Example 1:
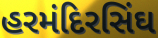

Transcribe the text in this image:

હરમંદિરસિંઘ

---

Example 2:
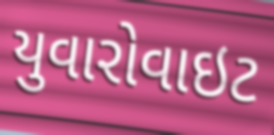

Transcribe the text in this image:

યુવારોવાઇટ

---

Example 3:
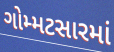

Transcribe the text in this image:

ગોમ્મટસારમાં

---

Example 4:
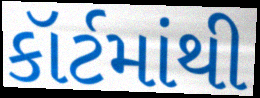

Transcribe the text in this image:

કૉર્ટમાંથી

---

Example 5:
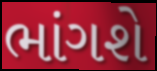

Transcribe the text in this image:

ભાંગશે